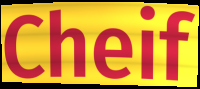
Cheif